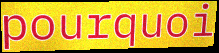
pourquoi